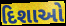
દિશાઓ